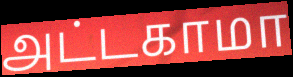
அட்டகாமா